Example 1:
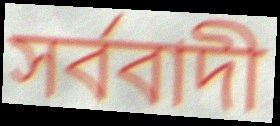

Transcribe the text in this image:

সর্ববাদী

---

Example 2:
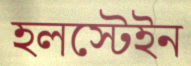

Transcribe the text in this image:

হলস্টেইন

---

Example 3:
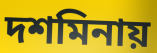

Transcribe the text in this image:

দশমিনায়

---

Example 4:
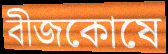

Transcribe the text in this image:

বীজকোষে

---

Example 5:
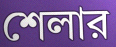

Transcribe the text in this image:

শেলার